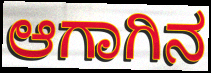
ಆಗಾಗಿನ